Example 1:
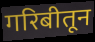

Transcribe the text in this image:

गरिबीतून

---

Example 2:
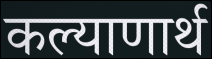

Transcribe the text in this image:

कल्याणार्थ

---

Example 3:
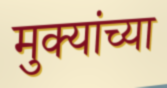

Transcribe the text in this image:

मुक्यांच्या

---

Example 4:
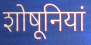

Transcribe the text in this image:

शोषूनियां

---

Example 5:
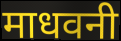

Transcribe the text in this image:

माधवनी